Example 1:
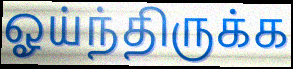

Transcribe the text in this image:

ஓய்ந்திருக்க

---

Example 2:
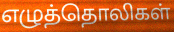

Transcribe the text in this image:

எழுத்தொலிகள்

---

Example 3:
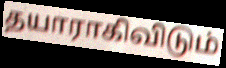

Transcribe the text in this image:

தயாராகிவிடும்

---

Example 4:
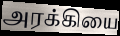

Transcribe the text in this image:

அரக்கியை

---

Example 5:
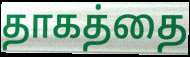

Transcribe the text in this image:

தாகத்தை